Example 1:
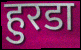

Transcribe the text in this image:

हुरडा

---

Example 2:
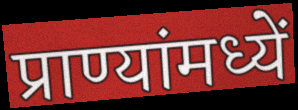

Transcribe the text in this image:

प्राण्यांमध्यें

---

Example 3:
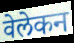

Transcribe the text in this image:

वेलेकन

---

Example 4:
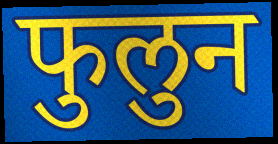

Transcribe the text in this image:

फुलुन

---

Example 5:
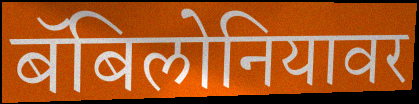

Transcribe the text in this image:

बॅबिलोनियावर